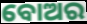
ବୋଅର